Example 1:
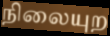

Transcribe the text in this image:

நிலையுற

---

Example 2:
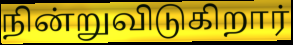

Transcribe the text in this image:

நின்றுவிடுகிறார்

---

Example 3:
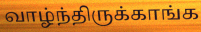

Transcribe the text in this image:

வாழ்ந்திருக்காங்க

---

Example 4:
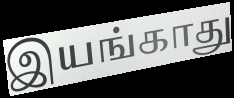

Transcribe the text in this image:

இயங்காது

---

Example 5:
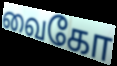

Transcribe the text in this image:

வைகோ